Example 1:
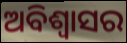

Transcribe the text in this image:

ଅବିଶ୍ବାସର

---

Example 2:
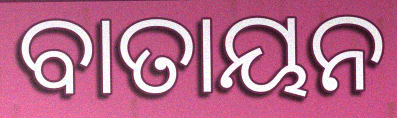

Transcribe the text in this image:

ବାତାୟନ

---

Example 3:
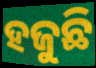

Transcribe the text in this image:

ହଜୁଛି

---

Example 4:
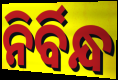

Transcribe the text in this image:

ନିର୍ବିନ୍ଧ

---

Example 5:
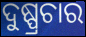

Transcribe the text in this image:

ଦୁଷ୍ପ୍ରଚାର